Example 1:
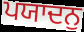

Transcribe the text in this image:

ਪਯਾਦਨੁ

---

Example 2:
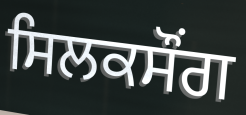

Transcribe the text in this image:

ਸਿਲਕਸੌਂਗ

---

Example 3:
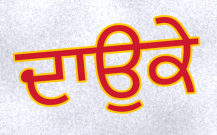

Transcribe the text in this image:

ਦਾਉਕੇ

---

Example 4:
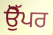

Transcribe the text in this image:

ਉੋੱਪਰ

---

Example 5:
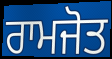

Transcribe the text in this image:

ਰਾਮਜੋਤ